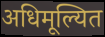
अधिमूल्यित